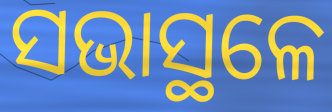
ସଭାସ୍ଥଳେ